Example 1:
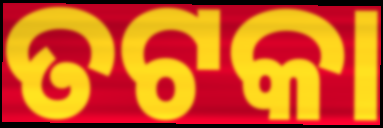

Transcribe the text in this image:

ତଟକା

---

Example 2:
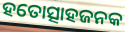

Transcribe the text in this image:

ହତୋତ୍ସାହଜନକ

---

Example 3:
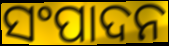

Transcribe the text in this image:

ସଂପାଦନ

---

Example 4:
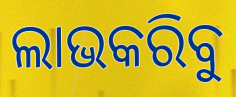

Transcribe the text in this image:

ଲାଭକରିବୁ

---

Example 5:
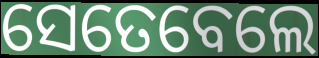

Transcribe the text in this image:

ସେତେବେଲେ